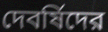
দেবর্ষিদের